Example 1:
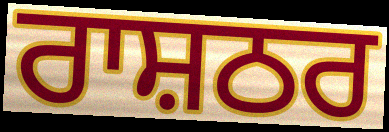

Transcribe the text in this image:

ਰਾਸ਼ਠਰ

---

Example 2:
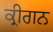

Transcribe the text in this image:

ਕ੍ਰੀਗਨ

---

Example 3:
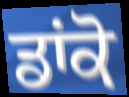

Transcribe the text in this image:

ਡਾਂਕੋ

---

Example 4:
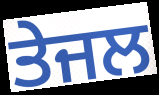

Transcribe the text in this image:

ਤੇਜਲ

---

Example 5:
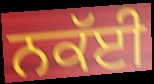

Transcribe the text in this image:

ਨਕੱਈ